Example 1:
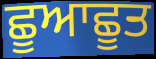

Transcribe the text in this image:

ਛੂਆਛੂਤ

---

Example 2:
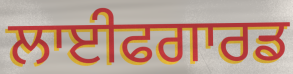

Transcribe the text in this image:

ਲਾਈਫਗਾਰਡ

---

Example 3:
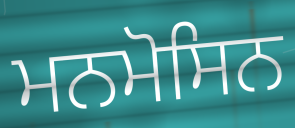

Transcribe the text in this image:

ਮਨਮੋਸਿਨ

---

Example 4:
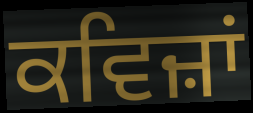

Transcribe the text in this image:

ਕਵਿਜ਼ਾਂ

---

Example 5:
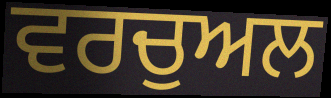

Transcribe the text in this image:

ਵਰਚੁਅਲ